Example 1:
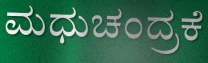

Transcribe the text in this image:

ಮಧುಚಂದ್ರಕೆ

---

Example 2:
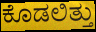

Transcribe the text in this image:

ಕೊಡಲಿತ್ತು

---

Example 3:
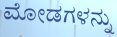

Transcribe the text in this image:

ಮೋಡಗಳನ್ನು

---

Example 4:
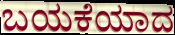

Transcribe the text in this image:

ಬಯಕೆಯಾದ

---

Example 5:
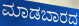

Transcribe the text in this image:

ಮಾಡಬಾರದ